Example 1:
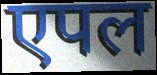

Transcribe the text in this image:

एपल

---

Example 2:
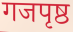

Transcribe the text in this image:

गजपृष्ठ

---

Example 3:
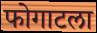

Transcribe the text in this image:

फोगाटला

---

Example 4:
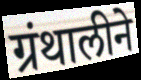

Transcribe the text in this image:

ग्रंथालीने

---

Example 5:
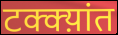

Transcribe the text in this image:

टक्क्य़ांत